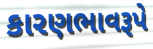
કારણભાવરૂપે